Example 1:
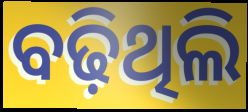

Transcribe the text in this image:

ବଢ଼ିଥିଲି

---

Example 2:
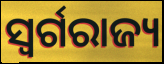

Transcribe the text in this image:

ସ୍ୱର୍ଗରାଜ୍ୟ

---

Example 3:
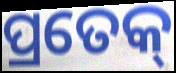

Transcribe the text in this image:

ପ୍ରତେକ୍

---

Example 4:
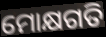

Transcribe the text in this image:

ମୋକ୍ଷଗତି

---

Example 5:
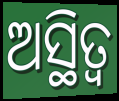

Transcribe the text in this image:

ଅସ୍ଥିତ୍ଵ